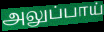
அலுப்பாய்